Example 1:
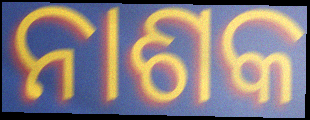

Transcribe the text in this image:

ନାଶକ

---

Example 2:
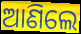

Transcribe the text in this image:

ଆଣିଲେ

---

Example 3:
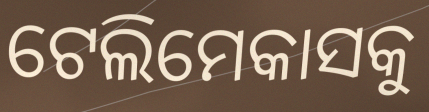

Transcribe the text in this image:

ଟେଲିମେକାସକୁ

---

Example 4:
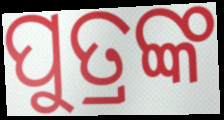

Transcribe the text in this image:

ପୁତ୍ରଙ୍କ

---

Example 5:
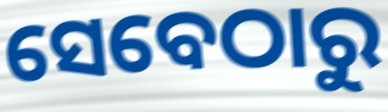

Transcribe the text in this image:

ସେବେଠାରୁ